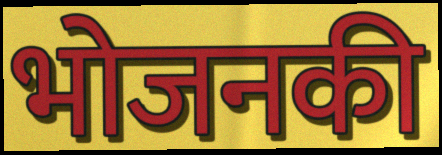
भोजनकी